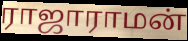
ராஜாராமன்